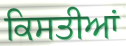
ਕਿਸਤੀਆਂ